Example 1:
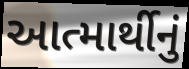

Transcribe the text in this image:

આત્માર્થીનું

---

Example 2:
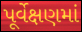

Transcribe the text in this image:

પૂર્વેક્ષણમાં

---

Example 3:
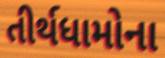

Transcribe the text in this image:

તીર્થધામોના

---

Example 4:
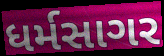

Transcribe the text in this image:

ધર્મસાગર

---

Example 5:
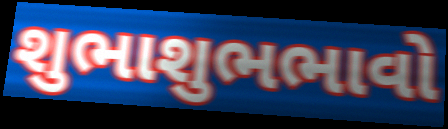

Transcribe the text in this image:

શુભાશુભભાવો